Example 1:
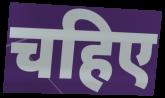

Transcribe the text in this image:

चहिए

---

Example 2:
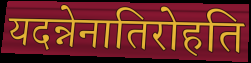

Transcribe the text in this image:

यदन्नेनातिरोहति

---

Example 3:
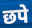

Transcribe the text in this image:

छपे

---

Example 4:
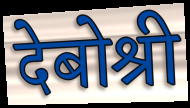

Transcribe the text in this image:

देबोश्री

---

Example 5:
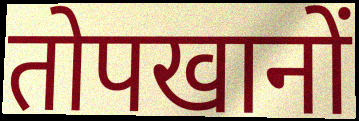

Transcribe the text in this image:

तोपखानों